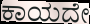
ಕಾಯದೇ